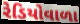
રેડિયોવાળા